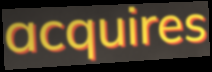
acquires